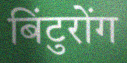
बिंटुरोंग